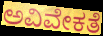
ಅವಿವೇಕತೆ